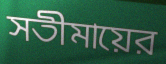
সতীমায়ের